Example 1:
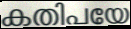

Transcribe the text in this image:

കതിപയേ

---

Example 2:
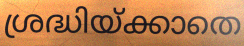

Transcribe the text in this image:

ശ്രദ്ധിയ്ക്കാതെ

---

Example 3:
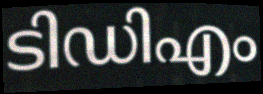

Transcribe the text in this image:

ടിഡിഎം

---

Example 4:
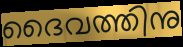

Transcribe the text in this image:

ദൈവത്തിനു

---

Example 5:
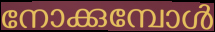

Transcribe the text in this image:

നോക്കുമ്പോൾ